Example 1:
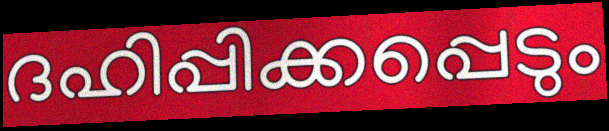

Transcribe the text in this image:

ദഹിപ്പിക്കപ്പെടും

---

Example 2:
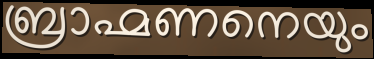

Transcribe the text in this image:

ബ്രാഹ്മണനെയും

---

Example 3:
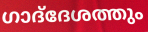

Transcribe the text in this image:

ഗാദ്‌ദേശത്തും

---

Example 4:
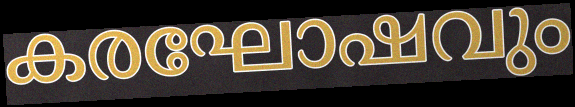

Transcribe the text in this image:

കരഘോഷവും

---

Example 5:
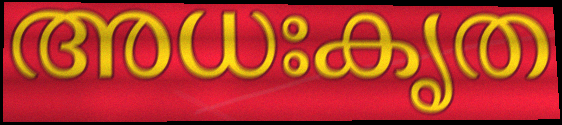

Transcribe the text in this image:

അധഃകൃത